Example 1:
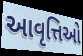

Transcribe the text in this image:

આવૃત્તિઓ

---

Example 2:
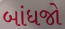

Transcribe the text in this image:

બાંધજો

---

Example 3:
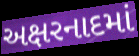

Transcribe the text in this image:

અક્ષરનાદમાં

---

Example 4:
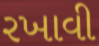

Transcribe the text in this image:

રખાવી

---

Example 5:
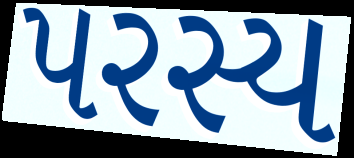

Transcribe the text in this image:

પરસ્ય